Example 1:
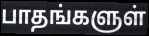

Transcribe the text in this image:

பாதங்களுள்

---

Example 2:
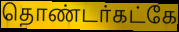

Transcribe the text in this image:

தொண்டர்கட்கே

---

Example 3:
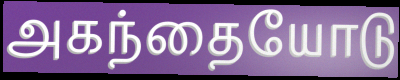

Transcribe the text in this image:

அகந்தையோடு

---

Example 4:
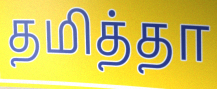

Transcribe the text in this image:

தமித்தா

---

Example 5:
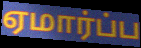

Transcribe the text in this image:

ஏமார்ப்ப